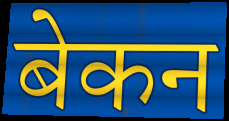
बेकन